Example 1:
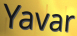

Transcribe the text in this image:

Yavar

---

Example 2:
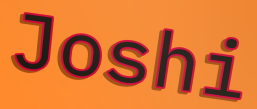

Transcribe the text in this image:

Joshi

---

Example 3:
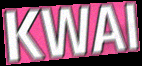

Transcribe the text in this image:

KWAI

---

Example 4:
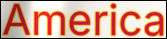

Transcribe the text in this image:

America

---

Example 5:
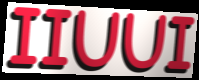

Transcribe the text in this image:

IIUUI